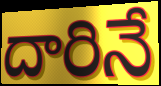
దారినే